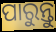
ପାରୁନ୍ତୁ